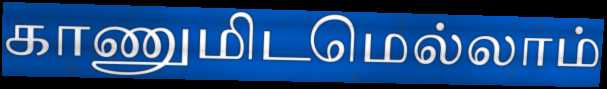
காணுமிடமெல்லாம்